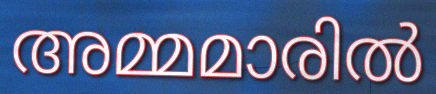
അമ്മമാരിൽ